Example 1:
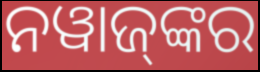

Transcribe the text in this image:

ନୱାଜ୍‍ଙ୍କର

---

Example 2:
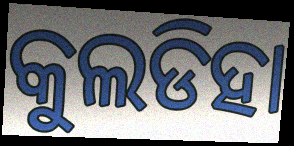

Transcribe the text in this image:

କୁଲଡିହା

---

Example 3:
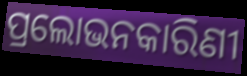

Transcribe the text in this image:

ପ୍ରଲୋଭନକାରିଣୀ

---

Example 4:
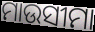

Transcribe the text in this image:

ମାଉସୀମା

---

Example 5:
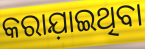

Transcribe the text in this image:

କରାଯ଼ାଇଥିବା